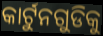
କାର୍ଟୁନଗୁଡିକୁ